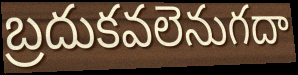
బ్రదుకవలెనుగదా